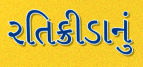
રતિક્રીડાનું